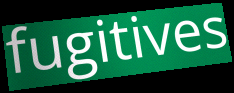
fugitives